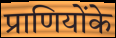
प्राणियोंके